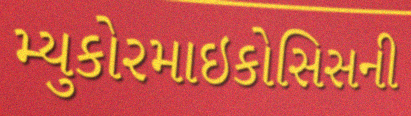
મ્યુકોરમાઇકોસિસની